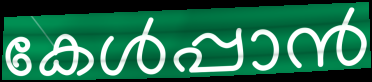
കേൾപ്പാൻ